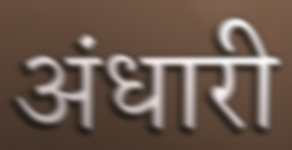
अंधारी